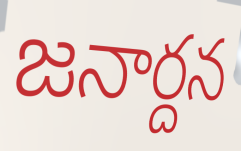
జనార్దన